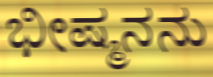
ಭೀಷ್ಮನನು